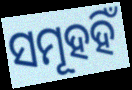
ସମୂହହିଁ